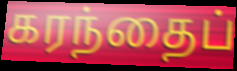
கரந்தைப்